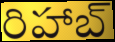
రిహాబ్